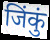
जिंकुं